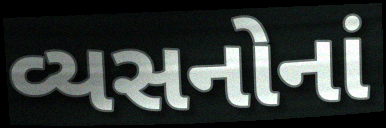
વ્યસનોનાં